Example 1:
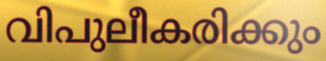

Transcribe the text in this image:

വിപുലീകരിക്കും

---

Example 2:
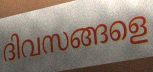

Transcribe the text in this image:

ദിവസങ്ങളെ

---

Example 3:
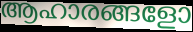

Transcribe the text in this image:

ആഹാരങ്ങളോ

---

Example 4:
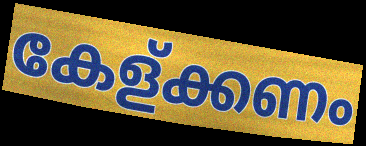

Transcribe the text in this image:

കേള്ക്കണം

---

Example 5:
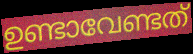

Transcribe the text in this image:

ഉണ്ടാവേണ്ടത്